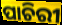
ପାଚିରୀ